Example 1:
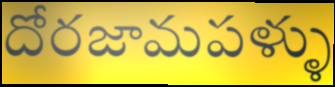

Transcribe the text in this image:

దోరజామపళ్ళు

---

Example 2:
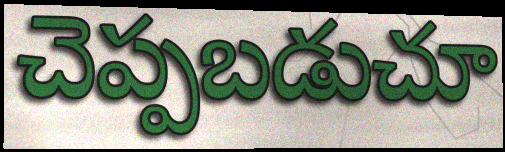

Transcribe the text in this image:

చెప్పబడుచూ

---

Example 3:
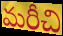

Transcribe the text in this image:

మరీచి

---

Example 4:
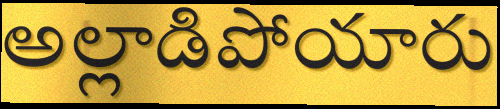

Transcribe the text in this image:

అల్లాడిపోయారు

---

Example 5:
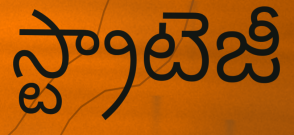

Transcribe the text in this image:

స్ట్రాటెజీ